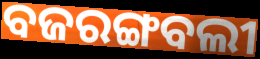
ବଜରଙ୍ଗବଲୀ